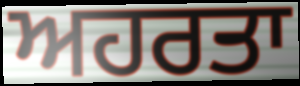
ਅਹਰਤਾ